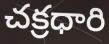
చక్రధారి